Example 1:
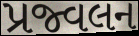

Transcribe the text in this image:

પ્રજ્વલન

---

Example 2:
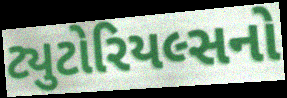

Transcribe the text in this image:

ટ્યુટોરિયલ્સનો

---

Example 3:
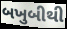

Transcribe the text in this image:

બખુબીથી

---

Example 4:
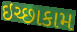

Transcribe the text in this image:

ઇચ્છાકામ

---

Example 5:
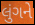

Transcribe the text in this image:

લુંગને